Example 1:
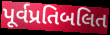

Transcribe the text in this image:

પૂર્વપ્રતિબલિત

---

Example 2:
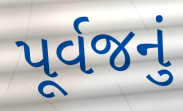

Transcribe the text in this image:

પૂર્વજનું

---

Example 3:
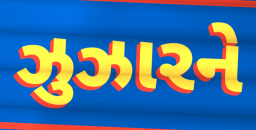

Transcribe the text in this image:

ઝુઝારને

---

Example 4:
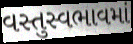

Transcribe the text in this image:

વસ્તુસ્વભાવમાં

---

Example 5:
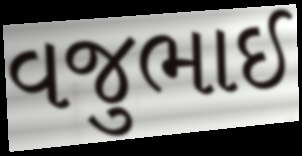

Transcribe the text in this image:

વજુભાઈ